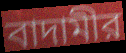
বাদামীর